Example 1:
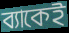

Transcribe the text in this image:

ব্যাকেই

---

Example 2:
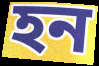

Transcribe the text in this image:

হন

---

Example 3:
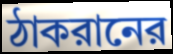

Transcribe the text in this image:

ঠাকরানের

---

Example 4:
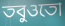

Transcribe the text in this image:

তবুওতো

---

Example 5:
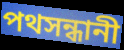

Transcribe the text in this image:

পথসন্ধানী